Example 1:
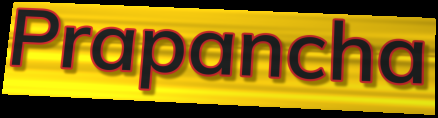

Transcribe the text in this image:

Prapancha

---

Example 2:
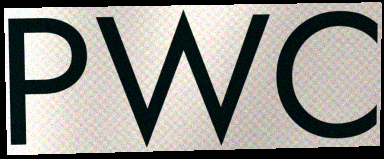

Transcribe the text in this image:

PWC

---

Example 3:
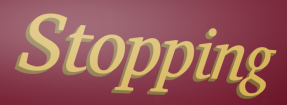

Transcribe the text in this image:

Stopping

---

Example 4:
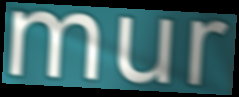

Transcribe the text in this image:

mur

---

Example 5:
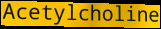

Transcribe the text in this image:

Acetylcholine